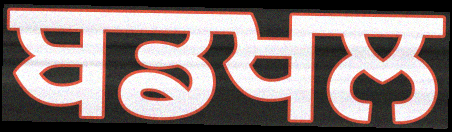
ਬਡਖਲ